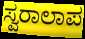
ಸ್ವರಾಲಾಪ